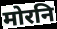
मोरनि